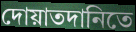
দোয়াতদানিতে